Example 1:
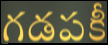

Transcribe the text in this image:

గడపకీ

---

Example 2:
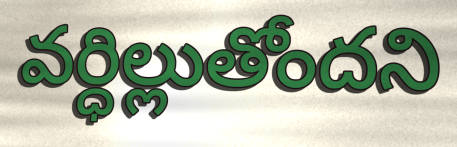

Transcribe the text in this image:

వర్ధిల్లుతోందని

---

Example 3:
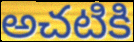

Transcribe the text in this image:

అచటికి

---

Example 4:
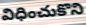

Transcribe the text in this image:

విధించుకొని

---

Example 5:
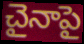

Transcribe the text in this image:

చైనాపై